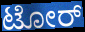
ಟೋರ್